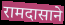
रामदासाने